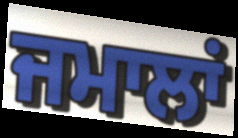
ਜਮਾਲਾਂ